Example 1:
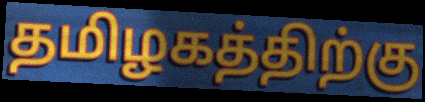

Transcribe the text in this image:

தமிழகத்திற்கு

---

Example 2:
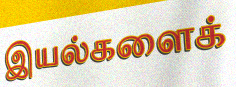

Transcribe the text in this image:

இயல்களைக்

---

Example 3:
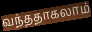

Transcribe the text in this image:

வந்ததாகலாம்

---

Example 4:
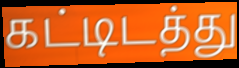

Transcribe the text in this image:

கட்டிடத்து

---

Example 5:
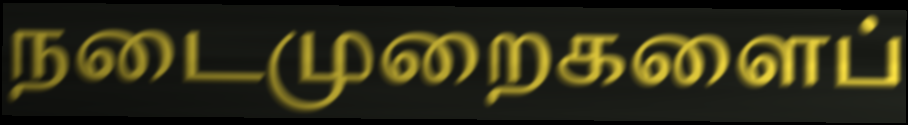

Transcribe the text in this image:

நடைமுறைகளைப்